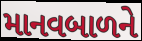
માનવબાળને